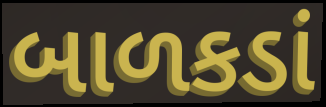
બાળકડાં